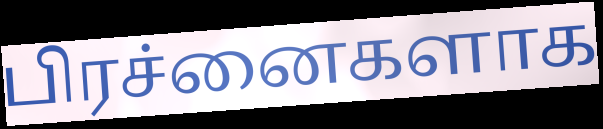
பிரச்னைகளாக